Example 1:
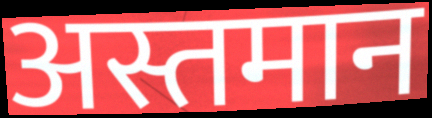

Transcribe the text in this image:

अस्तमान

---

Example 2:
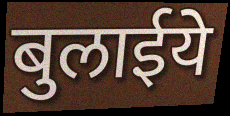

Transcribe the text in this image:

बुलाईये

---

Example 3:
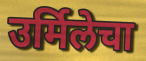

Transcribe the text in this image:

उर्मिलेचा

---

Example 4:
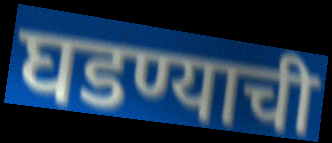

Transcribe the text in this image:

घडण्याची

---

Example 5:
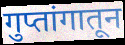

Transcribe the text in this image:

गुप्तांगातून